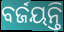
ବର୍ଜୟନ୍ତି